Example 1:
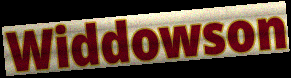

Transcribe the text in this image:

Widdowson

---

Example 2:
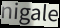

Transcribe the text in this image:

nigale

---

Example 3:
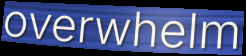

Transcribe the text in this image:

overwhelm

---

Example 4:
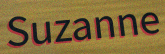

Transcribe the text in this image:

Suzanne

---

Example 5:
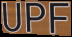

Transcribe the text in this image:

UPF